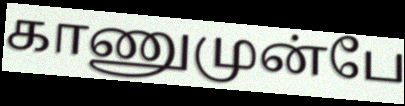
காணுமுன்பே